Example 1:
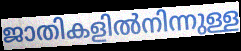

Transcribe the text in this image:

ജാതികളിൽനിന്നുള്ള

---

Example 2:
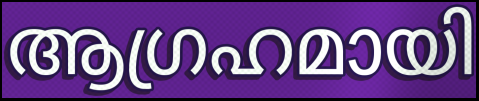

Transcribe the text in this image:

ആഗ്രഹമായി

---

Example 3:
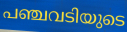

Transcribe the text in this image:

പഞ്ചവടിയുടെ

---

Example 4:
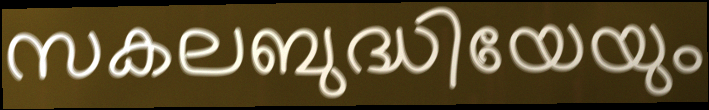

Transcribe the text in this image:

സകലബുദ്ധിയേയും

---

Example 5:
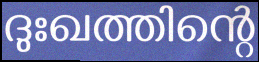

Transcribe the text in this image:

ദുഃഖത്തിന്റെ